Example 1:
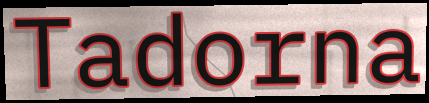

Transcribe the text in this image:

Tadorna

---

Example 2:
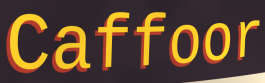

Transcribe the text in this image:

Caffoor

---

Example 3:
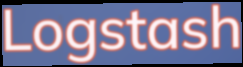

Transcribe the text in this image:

Logstash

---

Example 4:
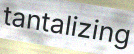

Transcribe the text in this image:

tantalizing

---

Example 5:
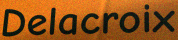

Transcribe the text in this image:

Delacroix